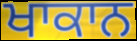
ਖਾਕਾਨ